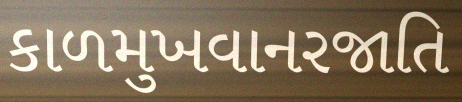
કાળમુખવાનરજાતિ